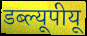
डब्ल्यूपीयू